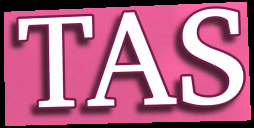
TAS